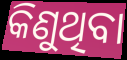
କିଣୁଥିବା